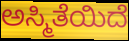
ಅಸ್ಮಿತೆಯಿದೆ